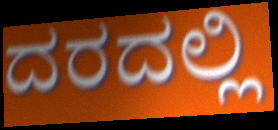
ದರದಲ್ಲಿ